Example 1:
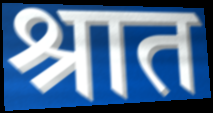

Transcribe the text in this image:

श्रात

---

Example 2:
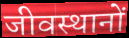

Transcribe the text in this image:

जीवस्थानों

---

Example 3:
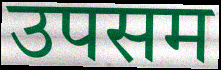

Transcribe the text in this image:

उपसम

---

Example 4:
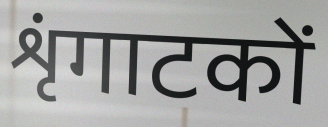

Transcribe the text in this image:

शृंगाटकों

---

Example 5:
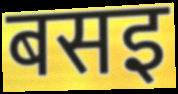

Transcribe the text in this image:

बसइ